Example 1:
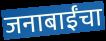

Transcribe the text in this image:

जनाबाईंचा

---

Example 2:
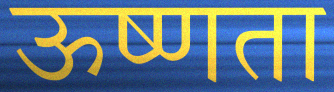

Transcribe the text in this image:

ऊष्णता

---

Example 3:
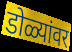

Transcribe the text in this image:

डोळ्यांवर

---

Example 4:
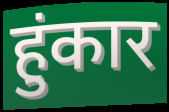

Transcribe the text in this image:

हुंकार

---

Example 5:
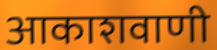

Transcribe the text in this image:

आकाशवाणी